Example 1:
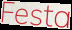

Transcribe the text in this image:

Festa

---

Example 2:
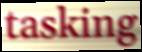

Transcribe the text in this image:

tasking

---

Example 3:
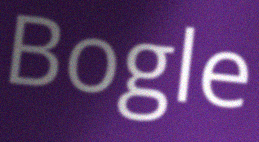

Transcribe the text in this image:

Bogle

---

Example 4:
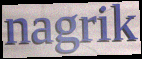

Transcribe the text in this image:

nagrik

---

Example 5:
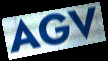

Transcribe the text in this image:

AGV